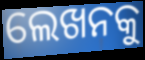
ଲେଖନକୁ